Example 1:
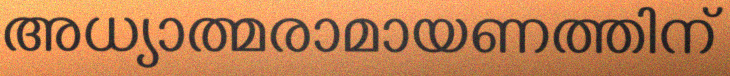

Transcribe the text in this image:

അധ്യാത്മരാമായണത്തിന്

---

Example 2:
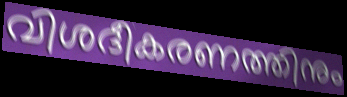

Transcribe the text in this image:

വിശദീകരണത്തിനും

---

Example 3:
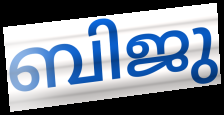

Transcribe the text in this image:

ബിജു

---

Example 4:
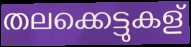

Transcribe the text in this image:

തലക്കെട്ടുകള്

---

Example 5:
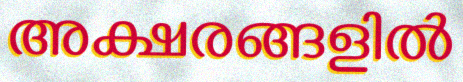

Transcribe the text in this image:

അക്ഷരങ്ങളിൽ